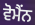
ਵੋਮੈਂਨ